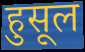
हुसूल